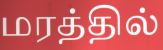
மரத்தில்